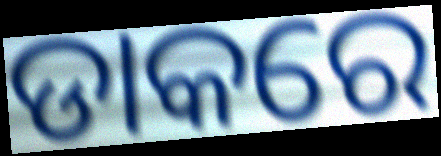
ଡାକରେ